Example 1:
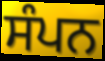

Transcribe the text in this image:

ਸੰਪਨ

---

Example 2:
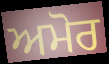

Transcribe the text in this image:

ਅਮੋਰ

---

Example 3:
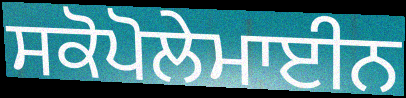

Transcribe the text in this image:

ਸਕੋਪੋਲੇਮਾਈਨ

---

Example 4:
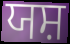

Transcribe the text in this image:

ਯਸ਼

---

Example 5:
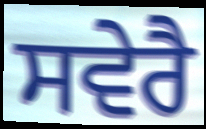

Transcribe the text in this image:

ਸਵੇਰੈ